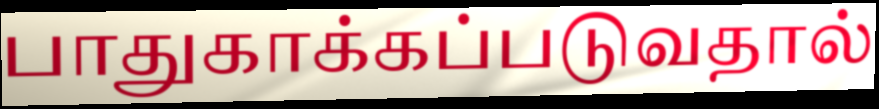
பாதுகாக்கப்படுவதால்